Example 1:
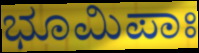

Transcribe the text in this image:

ಭೂಮಿಪಾಃ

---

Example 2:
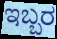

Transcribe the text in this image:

ಇಬ್ಬರ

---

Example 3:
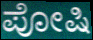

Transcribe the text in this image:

ಪೋಷಿ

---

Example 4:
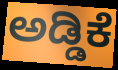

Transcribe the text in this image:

ಅಡ್ಡಿಕೆ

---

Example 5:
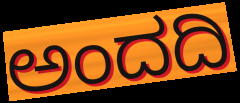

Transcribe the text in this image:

ಅಂದದಿ